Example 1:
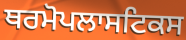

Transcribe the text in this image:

ਥਰਮੋਪਲਾਸਟਿਕਸ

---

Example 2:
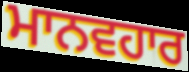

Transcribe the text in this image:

ਮਾਨਵਹਾਰ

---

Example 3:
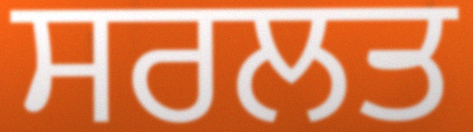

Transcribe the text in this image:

ਸਰਲਤ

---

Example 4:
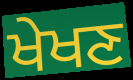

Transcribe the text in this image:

ਖੇਖਣ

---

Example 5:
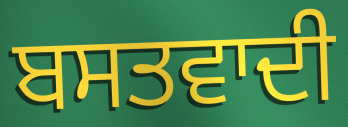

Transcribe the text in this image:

ਬਸਤਵਾਦੀ